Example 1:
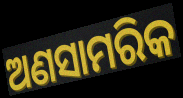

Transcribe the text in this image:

ଅଣସାମରିକ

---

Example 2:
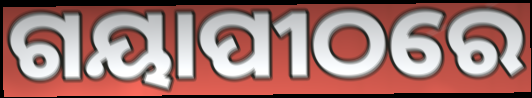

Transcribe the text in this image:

ଗୟାପୀଠରେ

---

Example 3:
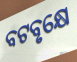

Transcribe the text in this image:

ବଟବୃକ୍ଷେ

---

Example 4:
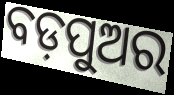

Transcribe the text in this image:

ବଡ଼ପୁଅର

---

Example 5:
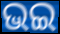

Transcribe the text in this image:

ଭଇ